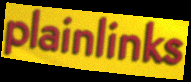
plainlinks